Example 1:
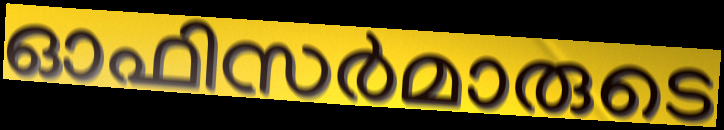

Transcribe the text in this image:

ഓഫിസർമാരുടെ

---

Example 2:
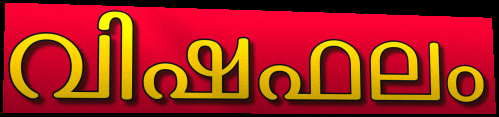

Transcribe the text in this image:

വിഷഫലം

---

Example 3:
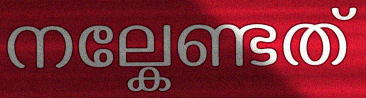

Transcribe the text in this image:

നല്കേണ്ടത്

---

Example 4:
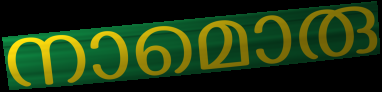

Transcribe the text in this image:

നാമൊരു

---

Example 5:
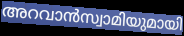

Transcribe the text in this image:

അറവാൻസ്വാമിയുമായി